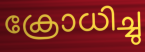
ക്രോധിച്ചു